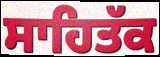
ਸਾਹਿਤੱਕ